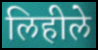
लिहीले